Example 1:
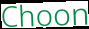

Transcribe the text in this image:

Choon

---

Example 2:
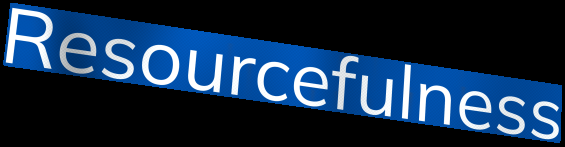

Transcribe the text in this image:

Resourcefulness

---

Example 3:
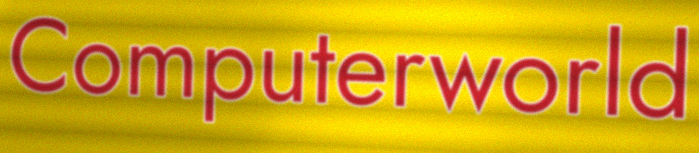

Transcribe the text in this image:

Computerworld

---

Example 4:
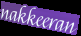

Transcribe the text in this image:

nakkeeran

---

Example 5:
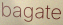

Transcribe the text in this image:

bagate